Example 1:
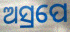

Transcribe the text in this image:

ଅସ୍ରପେ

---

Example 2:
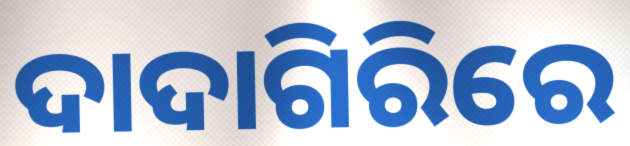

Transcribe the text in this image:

ଦାଦାଗିରିରେ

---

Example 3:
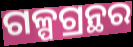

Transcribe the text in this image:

ଗଳ୍ପଗ୍ରନ୍ଥର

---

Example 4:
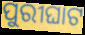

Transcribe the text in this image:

ପୁରୀଘାଟ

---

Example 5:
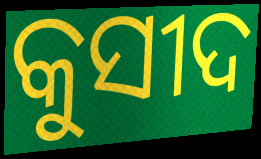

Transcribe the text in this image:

କୁସୀଦ